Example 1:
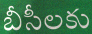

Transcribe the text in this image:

బీసీలకు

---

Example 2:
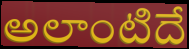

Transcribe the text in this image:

అలాంటిదే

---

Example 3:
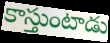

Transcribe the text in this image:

కాస్తుంటాడు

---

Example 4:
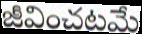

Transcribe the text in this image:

జీవించటమే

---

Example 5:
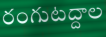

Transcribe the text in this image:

రంగుటద్దాల